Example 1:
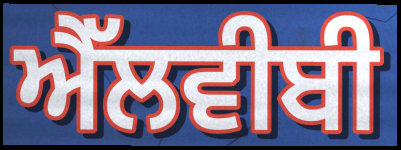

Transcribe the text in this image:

ਐੱਲਵੀਬੀ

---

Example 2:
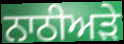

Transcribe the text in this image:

ਨਾਠੀਅੜੇ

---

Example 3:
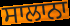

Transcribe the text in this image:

ਸਾਲਾਨਾ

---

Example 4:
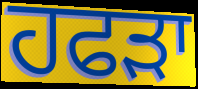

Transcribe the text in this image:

ਹਫੜਾ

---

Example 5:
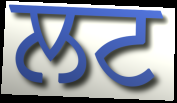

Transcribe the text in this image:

ਲਟ